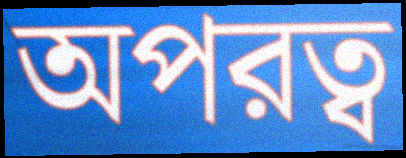
অপরত্ব